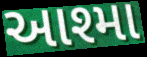
આશ્મા